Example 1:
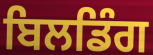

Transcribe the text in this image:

ਬਿਲਡਿੰਗ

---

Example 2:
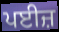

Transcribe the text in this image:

ਪਈਜ਼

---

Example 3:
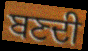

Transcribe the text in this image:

ਬਣਦੀ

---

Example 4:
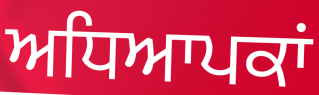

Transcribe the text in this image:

ਅਧਿਆਪਕਾਂ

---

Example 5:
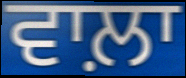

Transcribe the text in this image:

ਵਾਲ਼ਾ